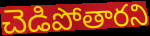
చెడిపోతారని